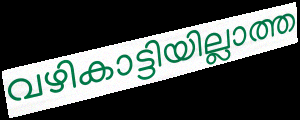
വഴികാട്ടിയില്ലാത്ത